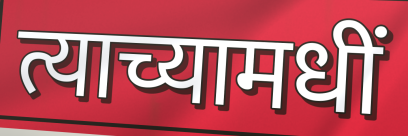
त्याच्यामधीं